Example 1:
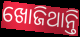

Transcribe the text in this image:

ଖୋଜିଥାନ୍ତି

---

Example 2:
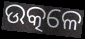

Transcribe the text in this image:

ଉତ୍କଳେ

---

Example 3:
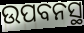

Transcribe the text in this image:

ଉପବନସ୍ଥ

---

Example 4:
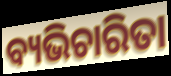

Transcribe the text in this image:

ବ୍ୟଭିଚାରିତା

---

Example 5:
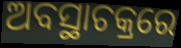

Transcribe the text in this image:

ଅବସ୍ଥାଚକ୍ରରେ